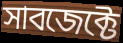
সাবজেক্টে